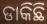
ଡାକିଛି